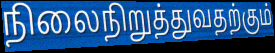
நிலைநிறுத்துவதற்கும்